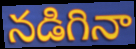
నడిగినా